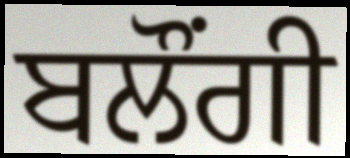
ਬਲੌਂਗੀ